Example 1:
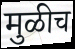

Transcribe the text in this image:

मुळीच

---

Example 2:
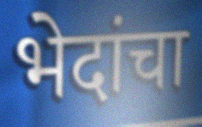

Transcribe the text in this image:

भेदांचा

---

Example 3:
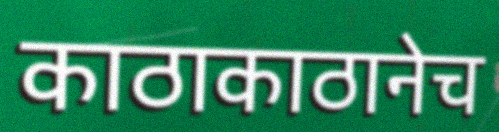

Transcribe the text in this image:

काठाकाठानेच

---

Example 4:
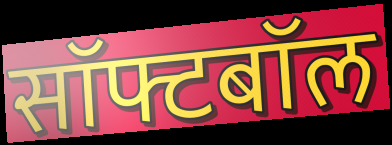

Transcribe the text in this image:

सॉफ्टबॉल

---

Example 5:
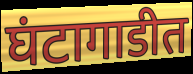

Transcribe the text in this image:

घंटागाडीत